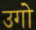
उगो